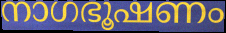
നാഗഭൂഷണം